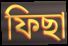
ফিছা